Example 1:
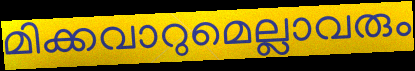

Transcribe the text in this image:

മിക്കവാറുമെല്ലാവരും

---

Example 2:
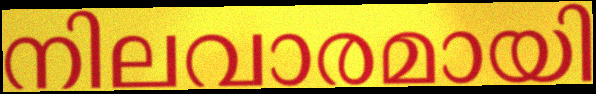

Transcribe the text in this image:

നിലവാരമായി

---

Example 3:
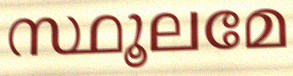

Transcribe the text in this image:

സ്ഥൂലമേ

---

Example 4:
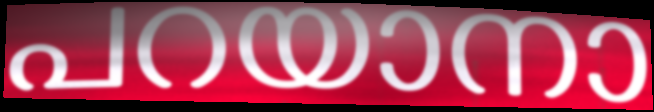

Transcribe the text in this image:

പറയാനാ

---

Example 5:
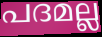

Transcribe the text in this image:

പദമല്ല